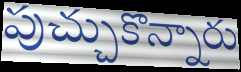
పుచ్చుకొన్నారు